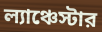
ল্যাঞ্চেস্টার